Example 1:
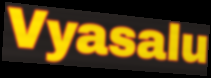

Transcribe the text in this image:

Vyasalu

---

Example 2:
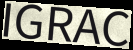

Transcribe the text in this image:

IGRAC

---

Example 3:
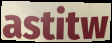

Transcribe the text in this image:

astitw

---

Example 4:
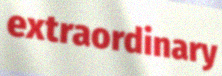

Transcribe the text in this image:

extraordinary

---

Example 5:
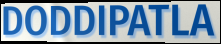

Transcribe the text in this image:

DODDIPATLA